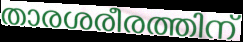
താരശരീരത്തിന്